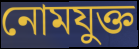
নোমযুক্ত